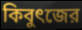
কিবুৎজের